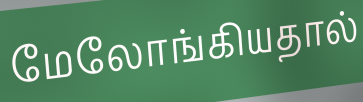
மேலோங்கியதால்